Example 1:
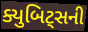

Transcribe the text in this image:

ક્યુબિટ્સની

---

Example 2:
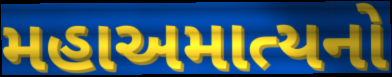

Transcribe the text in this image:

મહાઅમાત્યનો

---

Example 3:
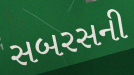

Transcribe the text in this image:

સબરસની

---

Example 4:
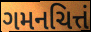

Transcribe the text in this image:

ગમનચિત્તં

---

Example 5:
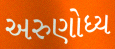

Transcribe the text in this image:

અરુણોધ્ય